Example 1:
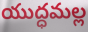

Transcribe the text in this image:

యుద్ధమల్ల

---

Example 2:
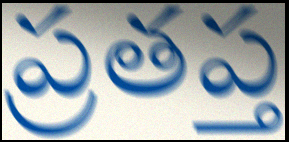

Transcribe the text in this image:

ప్రతప్త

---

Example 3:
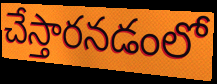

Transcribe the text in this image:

చేస్తారనడంలో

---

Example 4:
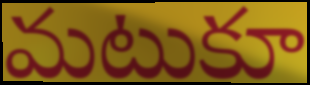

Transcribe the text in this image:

మటుకూ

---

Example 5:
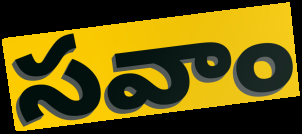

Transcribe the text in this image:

సవాం